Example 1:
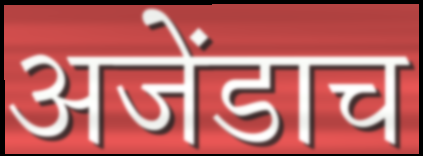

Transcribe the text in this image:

अजेंडाच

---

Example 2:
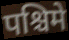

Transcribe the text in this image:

पश्चिमे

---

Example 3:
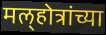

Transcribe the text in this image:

मल्होत्रांच्या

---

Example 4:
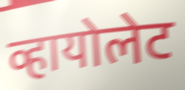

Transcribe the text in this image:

व्हायोलेट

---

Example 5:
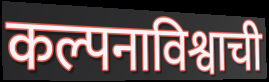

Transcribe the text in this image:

कल्पनाविश्वाची